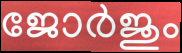
ജോർജും